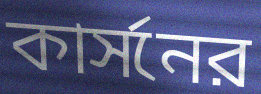
কার্সনের